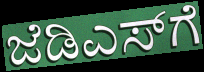
ಜೆಡಿಎಸ್‌ಗೆ